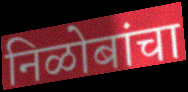
निळोबांचा